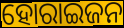
ହୋରାଇଜନ